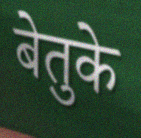
बेतुके